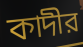
কাদীর